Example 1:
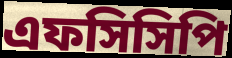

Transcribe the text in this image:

এফসিসিপি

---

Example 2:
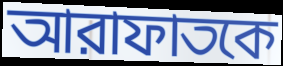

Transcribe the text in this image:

আরাফাতকে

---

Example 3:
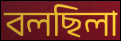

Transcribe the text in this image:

বলছিলা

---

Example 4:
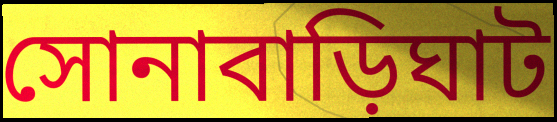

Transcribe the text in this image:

সোনাবাড়িঘাট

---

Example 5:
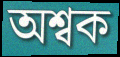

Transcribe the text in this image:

অশ্বক